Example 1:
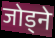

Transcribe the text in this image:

जोड्ने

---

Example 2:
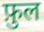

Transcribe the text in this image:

फ़ुल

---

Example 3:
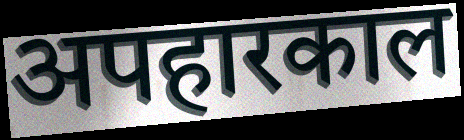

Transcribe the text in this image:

अपहारकाल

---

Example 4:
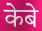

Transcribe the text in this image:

केबे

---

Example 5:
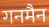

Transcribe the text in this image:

गनमैन